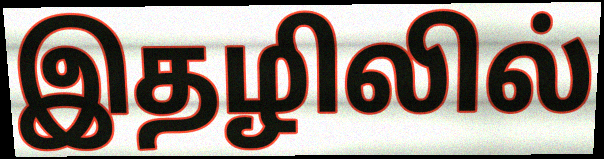
இதழிலில்